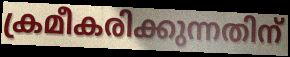
ക്രമീകരിക്കുന്നതിന്